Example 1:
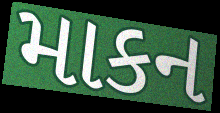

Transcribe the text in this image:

માકન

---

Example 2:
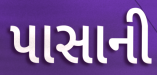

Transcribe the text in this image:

પાસાની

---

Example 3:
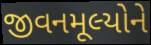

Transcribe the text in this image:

જીવનમૂલ્યોને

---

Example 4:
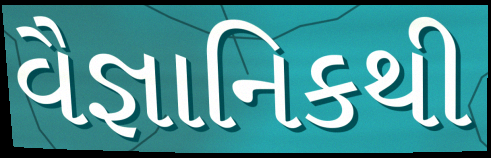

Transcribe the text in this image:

વૈજ્ઞાનિકથી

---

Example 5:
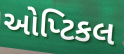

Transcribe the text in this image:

ઓપ્ટિકલ